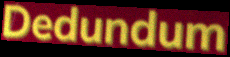
Dedundum